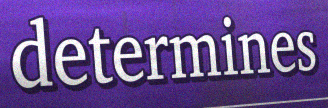
determines